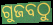
ଗୁଜବଠୁ